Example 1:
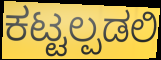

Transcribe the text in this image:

ಕಟ್ಟಲ್ಪಡಲಿ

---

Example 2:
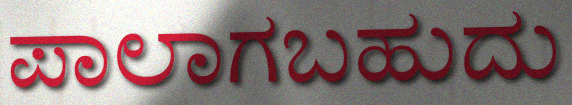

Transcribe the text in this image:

ಪಾಲಾಗಬಹುದು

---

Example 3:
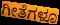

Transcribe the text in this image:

ಗೀತೆಗಳೂ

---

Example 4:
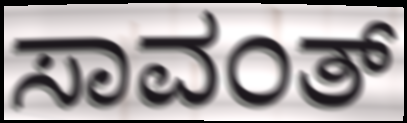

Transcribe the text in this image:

ಸಾವಂತ್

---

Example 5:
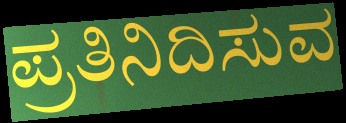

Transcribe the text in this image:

ಪ್ರತಿನಿದಿಸುವ